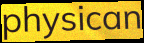
physican